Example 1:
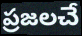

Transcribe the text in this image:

ప్రజలచే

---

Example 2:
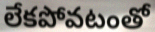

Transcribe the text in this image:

లేకపోవటంతో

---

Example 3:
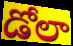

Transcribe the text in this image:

డోలా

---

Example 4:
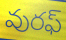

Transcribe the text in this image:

వురఫ్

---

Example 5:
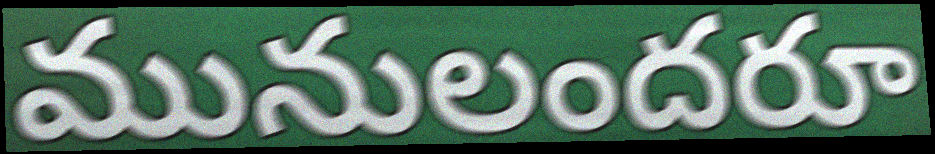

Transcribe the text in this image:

మునులందరూ